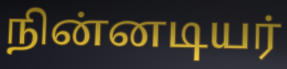
நின்னடியர்